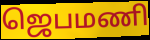
ஜெபமணி